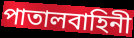
পাতালবাহিনী